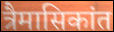
त्रैमासिकांत